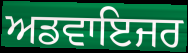
ਅਡਵਾਇਜਰ